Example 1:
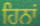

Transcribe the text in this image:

ਹਿਨਾਂ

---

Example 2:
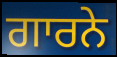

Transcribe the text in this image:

ਗਾਰਨੇ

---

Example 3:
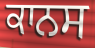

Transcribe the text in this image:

ਕਾਨਸ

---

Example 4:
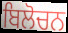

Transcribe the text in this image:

ਬਿਲੋਚਨ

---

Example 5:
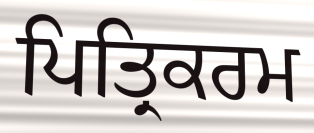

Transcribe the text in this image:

ਪਿਤ੍ਰਿਕਰਮ